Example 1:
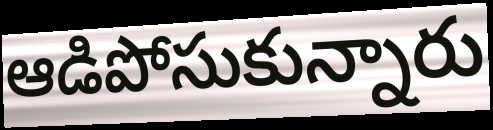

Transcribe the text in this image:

ఆడిపోసుకున్నారు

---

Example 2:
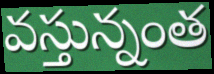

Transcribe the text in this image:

వస్తున్నంత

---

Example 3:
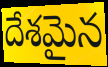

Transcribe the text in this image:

దేశమైన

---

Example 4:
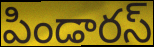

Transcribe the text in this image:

పిండారస్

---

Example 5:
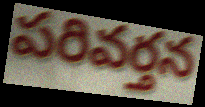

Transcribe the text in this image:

పరివర్తన